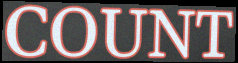
COUNT